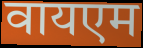
वायएम